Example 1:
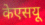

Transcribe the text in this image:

केएसयू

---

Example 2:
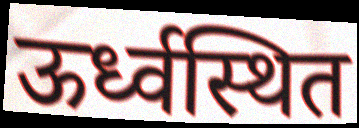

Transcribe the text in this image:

ऊर्ध्वस्थित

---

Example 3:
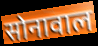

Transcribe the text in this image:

सोनावाल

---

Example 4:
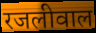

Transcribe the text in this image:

रजलीवाल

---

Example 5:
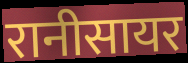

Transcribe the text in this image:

रानीसायर